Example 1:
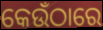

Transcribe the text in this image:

କେଉଁଠାରେ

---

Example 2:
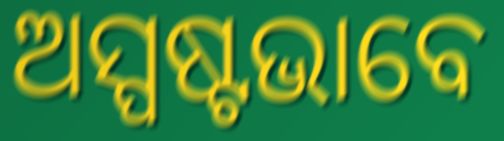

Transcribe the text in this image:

ଅସ୍ପଷ୍ଟଭାବେ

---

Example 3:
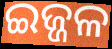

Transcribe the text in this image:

ଇଜ୍ଜଳ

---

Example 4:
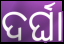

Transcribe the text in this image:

ଦର୍ଘା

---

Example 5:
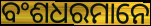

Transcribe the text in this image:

ବଂଶଧରମାନେ